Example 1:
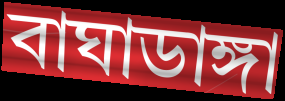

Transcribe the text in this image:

বাঘাডাঙ্গা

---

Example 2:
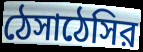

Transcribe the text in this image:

ঠেসাঠেসির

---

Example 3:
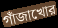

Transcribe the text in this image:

গাঁজাখোর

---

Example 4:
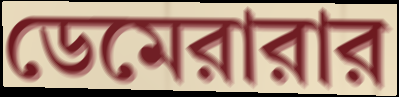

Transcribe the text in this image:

ডেমেরারার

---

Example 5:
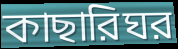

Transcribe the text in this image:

কাছারিঘর